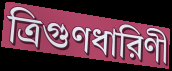
ত্রিগুণধারিণী